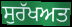
ਸੁਰੱਖਅਤ